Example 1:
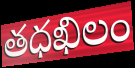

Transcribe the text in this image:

తధఖిలం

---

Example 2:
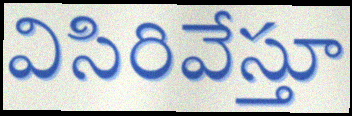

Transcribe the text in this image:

విసిరివేస్తూ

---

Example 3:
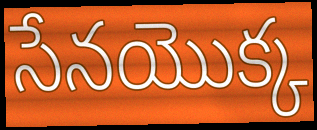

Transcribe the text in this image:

సేనయొక్క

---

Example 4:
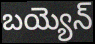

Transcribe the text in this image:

బయ్యెన్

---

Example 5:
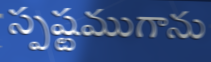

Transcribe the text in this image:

స్పష్టముగాను